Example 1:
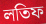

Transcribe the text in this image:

লতিফ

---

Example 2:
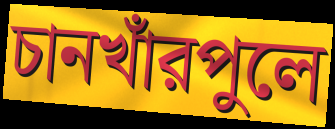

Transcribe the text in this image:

চানখাঁরপুলে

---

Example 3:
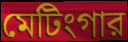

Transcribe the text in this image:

মেটিংগার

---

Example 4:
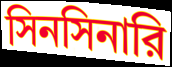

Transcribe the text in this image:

সিনসিনারি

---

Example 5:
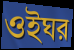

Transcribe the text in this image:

ওইঘর